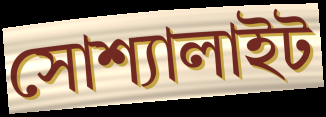
সোশ্যালাইট